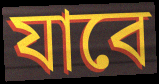
যাবে